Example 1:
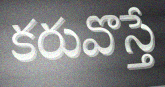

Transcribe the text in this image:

కరువొస్తే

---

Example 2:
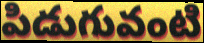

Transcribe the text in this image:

పిడుగువంటి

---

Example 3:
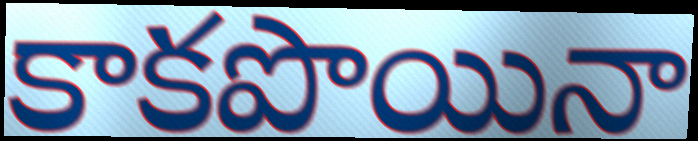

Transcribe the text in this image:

కాకపొయినా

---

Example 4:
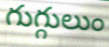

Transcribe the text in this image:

గుగ్గులుం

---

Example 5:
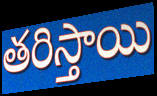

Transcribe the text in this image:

తరిస్తాయి